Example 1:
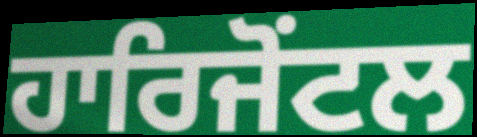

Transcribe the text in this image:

ਹਾਰਿਜੋਂਟਲ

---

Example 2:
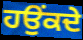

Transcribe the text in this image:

ਹਉਂਕਦੇ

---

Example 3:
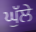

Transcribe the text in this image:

ਘੁੱਲੇ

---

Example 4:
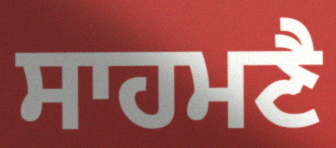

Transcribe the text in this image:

ਸਾਹਮਣੈ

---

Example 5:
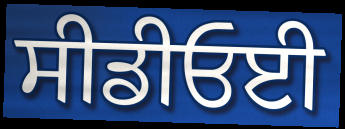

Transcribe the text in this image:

ਸੀਡੀਓਈ